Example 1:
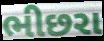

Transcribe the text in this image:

ભીછરા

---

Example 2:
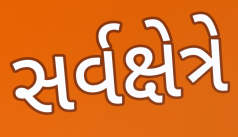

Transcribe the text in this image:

સર્વક્ષેત્રે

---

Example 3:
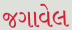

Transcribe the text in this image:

જગાવેલ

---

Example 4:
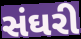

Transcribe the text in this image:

સંઘરી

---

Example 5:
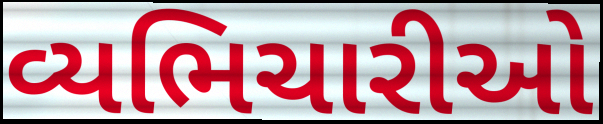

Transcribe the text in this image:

વ્યભિચારીઓ